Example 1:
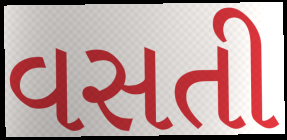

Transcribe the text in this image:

વસતી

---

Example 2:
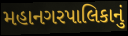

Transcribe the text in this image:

મહાનગરપાલિકાનું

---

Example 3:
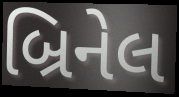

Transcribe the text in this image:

બ્રિનેલ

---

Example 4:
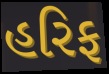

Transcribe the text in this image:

હરિફ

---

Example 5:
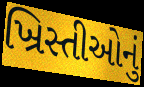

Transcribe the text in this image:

ખ્રિસ્તીઓનું